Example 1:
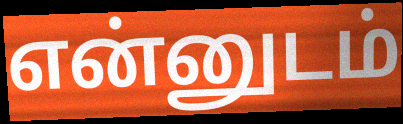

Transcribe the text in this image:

என்னுடம்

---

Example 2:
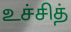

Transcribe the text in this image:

உச்சித்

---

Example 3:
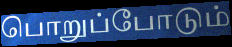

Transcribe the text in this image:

பொறுப்போடும்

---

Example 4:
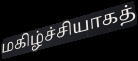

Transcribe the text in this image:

மகிழ்ச்சியாகத்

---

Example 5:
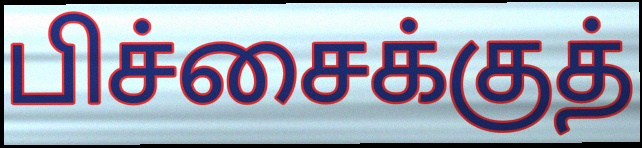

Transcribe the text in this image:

பிச்சைக்குத்